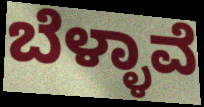
ಬೆಳ್ಳಾವೆ